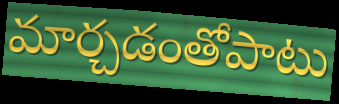
మార్చడంతోపాటు